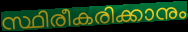
സ്ഥിരീകരിക്കാനും